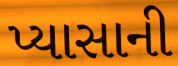
પ્યાસાની